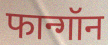
फान्गॉन